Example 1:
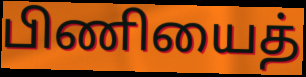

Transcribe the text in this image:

பிணியைத்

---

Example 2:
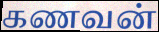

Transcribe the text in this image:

கணவன்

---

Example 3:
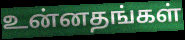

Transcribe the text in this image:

உன்னதங்கள்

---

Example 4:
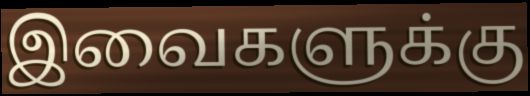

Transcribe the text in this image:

இவைகளுக்கு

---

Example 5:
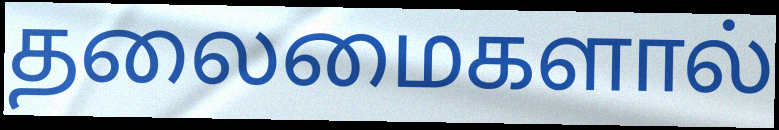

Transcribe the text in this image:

தலைமைகளால்